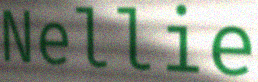
Nellie